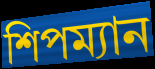
শিপম্যান